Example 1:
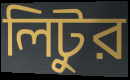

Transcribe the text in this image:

লিটুর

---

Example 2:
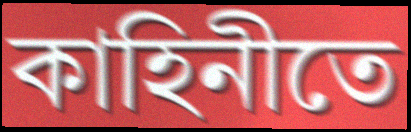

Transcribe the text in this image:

কাহিনীতে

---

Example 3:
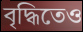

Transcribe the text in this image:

বৃদ্ধিতেও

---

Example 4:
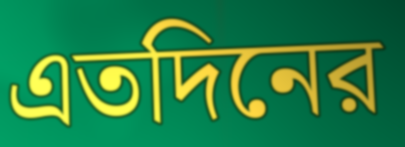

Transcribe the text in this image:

এতদিনের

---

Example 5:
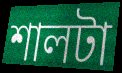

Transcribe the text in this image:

শালটা